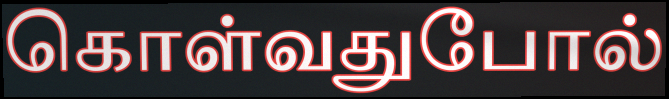
கொள்வதுபோல்